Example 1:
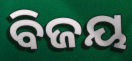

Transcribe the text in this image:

ବିଜୟ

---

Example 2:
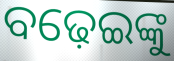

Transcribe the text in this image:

ବଢ଼େଇଙ୍କୁ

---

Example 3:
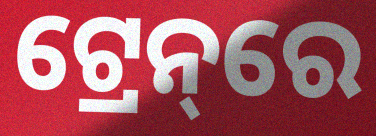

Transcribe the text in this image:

ଟ୍ରେନ୍‌ରେ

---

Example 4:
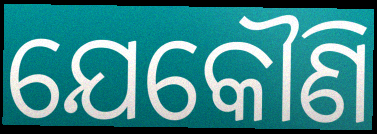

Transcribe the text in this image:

ଯେକୌଣି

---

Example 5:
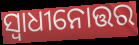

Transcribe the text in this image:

ସ୍ୱାଧୀନୋତ୍ତର